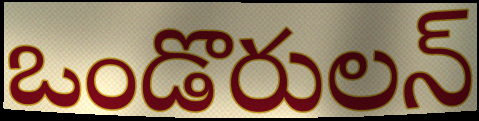
ఒండొరులన్